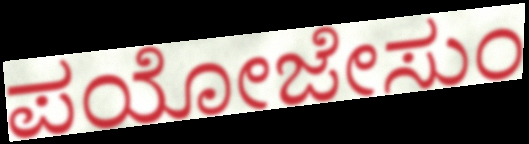
ಪಯೋಜೇಸುಂ